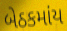
બેઠકમાંય